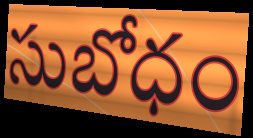
సుబోధం